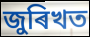
জুৰিখত